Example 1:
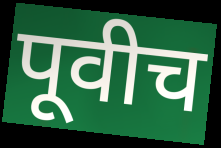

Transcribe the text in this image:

पूवीच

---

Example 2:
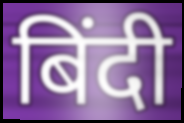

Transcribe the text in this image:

बिंदी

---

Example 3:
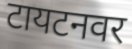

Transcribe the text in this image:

टायटनवर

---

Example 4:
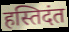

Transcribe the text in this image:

हस्तिदंत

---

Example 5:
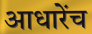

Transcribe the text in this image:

आधारेंच